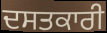
ਦਸਤਕਾਰੀ